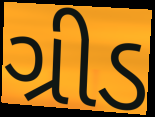
ગ્રીડ